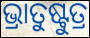
ଭ୍ରାତୁଷ୍ଟୁତ୍ର